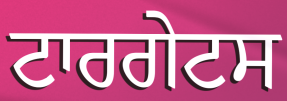
ਟਾਰਗੇਟਸ